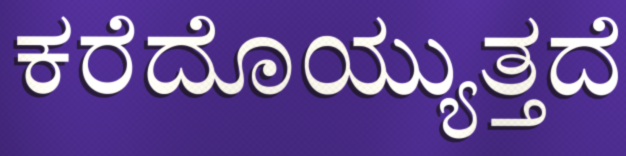
ಕರೆದೊಯ್ಯುತ್ತದೆ